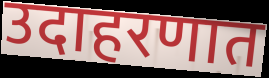
उदाहरणात